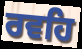
ਰਵਹਿ